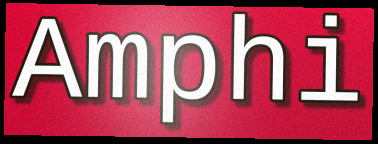
Amphi